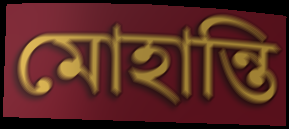
মোহান্তি